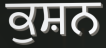
ਕੁਸ਼ਨ